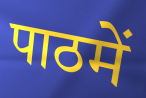
पाठमें